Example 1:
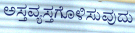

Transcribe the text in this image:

ಅಸ್ತವ್ಯಸ್ತಗೊಳಿಸುವುದು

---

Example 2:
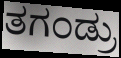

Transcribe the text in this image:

ತಗಂಡ್ರು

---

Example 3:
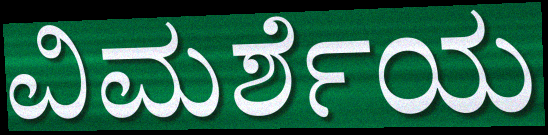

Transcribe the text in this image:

ವಿಮರ್ಶೆಯ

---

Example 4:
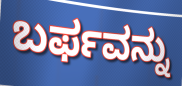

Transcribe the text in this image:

ಬರ್ಫವನ್ನು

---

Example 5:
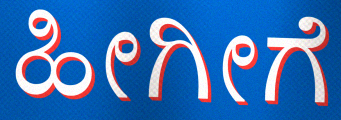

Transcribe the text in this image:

ಹೀಗೀಗೆ